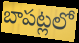
బాపట్లలో